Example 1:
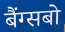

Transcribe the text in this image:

बैंग्सबो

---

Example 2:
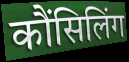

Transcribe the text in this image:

कौंसिलिंग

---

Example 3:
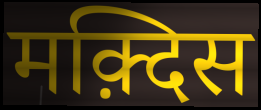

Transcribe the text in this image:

मक़्दिस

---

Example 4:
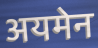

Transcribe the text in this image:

अयमेन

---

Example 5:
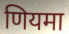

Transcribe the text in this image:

णियमा